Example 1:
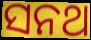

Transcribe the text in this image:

ସନଥ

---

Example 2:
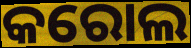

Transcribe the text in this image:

କରୋଲ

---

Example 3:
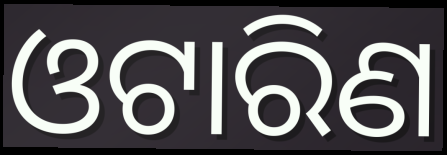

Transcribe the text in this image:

ଓଟାରିଣ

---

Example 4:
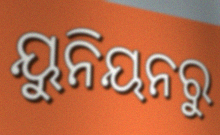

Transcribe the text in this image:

ୟୁନିୟନରୁ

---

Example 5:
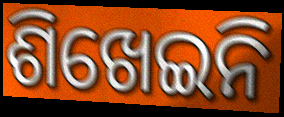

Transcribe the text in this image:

ଶିଖେଇନି